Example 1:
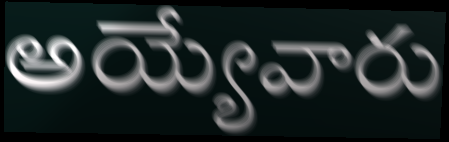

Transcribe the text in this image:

అయ్యేవారు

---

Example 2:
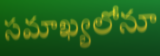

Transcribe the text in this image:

సమాఖ్యలోనూ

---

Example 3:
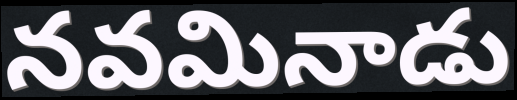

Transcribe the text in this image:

నవమినాడు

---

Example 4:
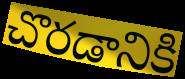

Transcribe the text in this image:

చొరడానికి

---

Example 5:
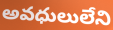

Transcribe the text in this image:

అవధులులేని